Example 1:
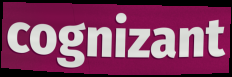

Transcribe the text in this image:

cognizant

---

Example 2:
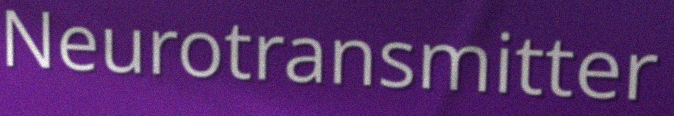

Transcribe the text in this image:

Neurotransmitter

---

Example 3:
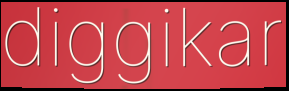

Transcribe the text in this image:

diggikar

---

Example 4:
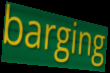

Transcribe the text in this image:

barging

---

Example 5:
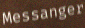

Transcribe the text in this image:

Messanger